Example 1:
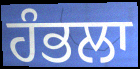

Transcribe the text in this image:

ਹੰਭਲਾ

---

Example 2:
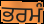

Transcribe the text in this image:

ਭਰਮੰ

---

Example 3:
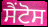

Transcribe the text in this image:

ਸੈਂਟੋਸ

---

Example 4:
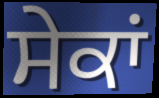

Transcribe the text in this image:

ਸੇਕਾਂ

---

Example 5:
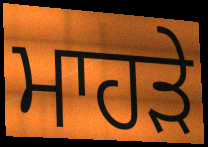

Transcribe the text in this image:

ਮਾਹੜੇ